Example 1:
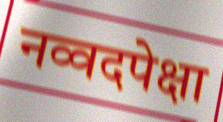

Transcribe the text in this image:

नव्वदपेक्षा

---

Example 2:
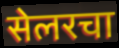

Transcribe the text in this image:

सेलरचा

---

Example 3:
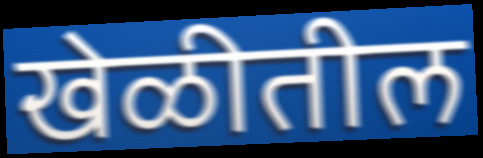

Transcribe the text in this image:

खेळीतील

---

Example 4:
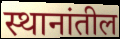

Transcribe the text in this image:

स्थानांतील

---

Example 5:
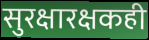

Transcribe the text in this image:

सुरक्षारक्षकही